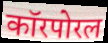
कॉरपोरल